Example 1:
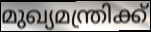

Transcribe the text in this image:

മുഖ്യമന്ത്രിക്ക്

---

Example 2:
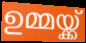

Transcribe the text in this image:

ഉമ്മയ്ക്ക്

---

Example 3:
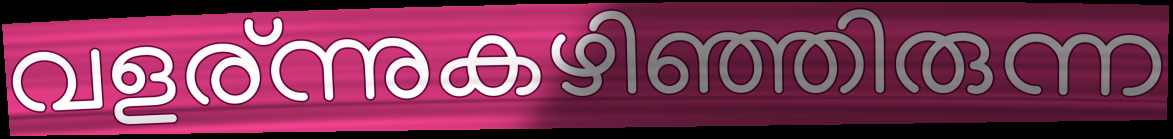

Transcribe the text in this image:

വളര്ന്നുകഴിഞ്ഞിരുന്ന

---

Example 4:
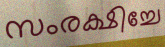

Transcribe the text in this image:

സംരക്ഷിച്ചേ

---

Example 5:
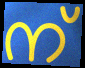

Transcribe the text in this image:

ന്